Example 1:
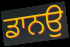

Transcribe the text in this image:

ਡਾਨਉ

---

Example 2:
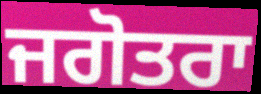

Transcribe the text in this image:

ਜਗੋਤਰਾ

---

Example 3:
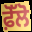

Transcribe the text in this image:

ਫ਼ੋੱਲੋ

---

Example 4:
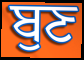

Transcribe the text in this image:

ਬੁਣ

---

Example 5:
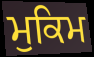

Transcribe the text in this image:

ਮੁਕਿਮ